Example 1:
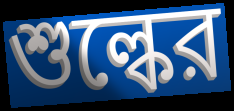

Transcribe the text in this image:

শুল্কের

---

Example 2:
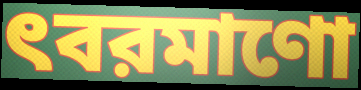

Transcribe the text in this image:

ৎবরমাণো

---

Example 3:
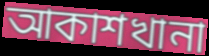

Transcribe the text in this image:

আকাশখানা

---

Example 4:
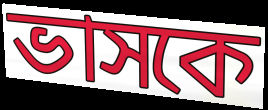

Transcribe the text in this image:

ভাসকে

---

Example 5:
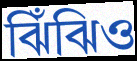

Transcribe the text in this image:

ঝিঁঝিও